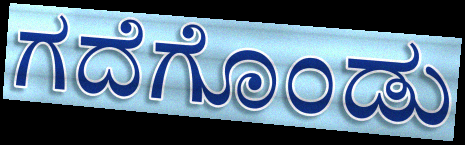
ಗದೆಗೊಂಡು